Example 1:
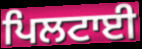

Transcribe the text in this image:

ਪਿਲਟਾਈ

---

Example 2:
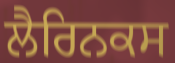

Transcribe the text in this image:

ਲੈਰਿਨਕਸ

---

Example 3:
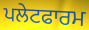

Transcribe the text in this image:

ਪਲੇਟਫਾਰਮ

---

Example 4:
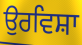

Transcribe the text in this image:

ਉਰਵਿਸ਼ਾ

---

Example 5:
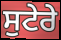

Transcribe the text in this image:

ਸੁਟੇਰੇ